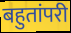
बहुतांपरी